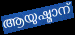
ആയുഷ്മാന്